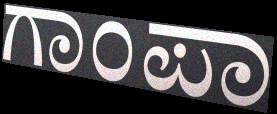
ಗಾಂಪಾ